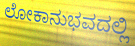
ಲೋಕಾನುಭವದಲ್ಲಿ